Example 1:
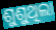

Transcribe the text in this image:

ଶୁଶୁଥିଲା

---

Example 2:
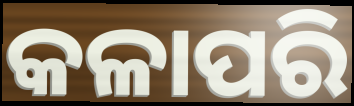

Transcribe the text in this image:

କଳାପରି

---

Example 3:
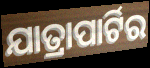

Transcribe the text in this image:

ଯାତ୍ରାପାର୍ଟିର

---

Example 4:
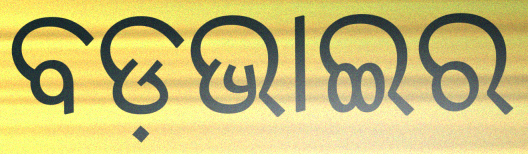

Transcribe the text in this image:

ବଡ଼ଭାଇର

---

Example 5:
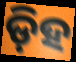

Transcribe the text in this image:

ଡ଼ିହ